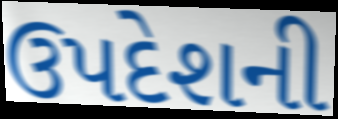
ઉપદેશની